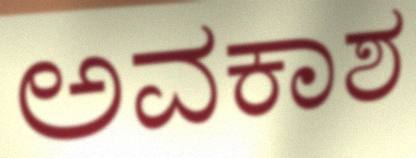
ಅವಕಾಶ